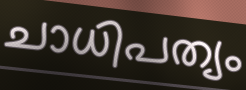
ചാധിപത്യം